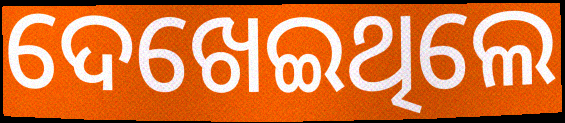
ଦେଖେଇଥିଲେ